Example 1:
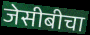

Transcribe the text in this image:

जेसीबीचा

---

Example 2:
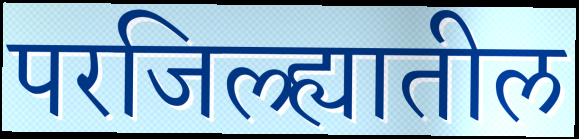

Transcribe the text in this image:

परजिल्ह्यातील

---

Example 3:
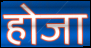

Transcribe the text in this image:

होजा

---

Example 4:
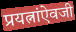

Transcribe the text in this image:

प्रयत्नांऐवजी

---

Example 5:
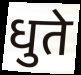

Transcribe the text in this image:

धुते